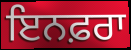
ਇਨਫ਼ਰਾ